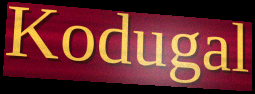
Kodugal